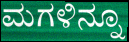
ಮಗಳಿನ್ನೂ